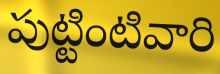
పుట్టింటివారి